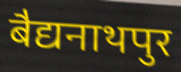
बैद्यनाथपुर